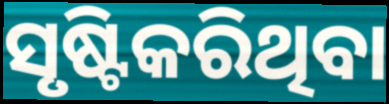
ସୃଷ୍ଟିକରିଥିବା